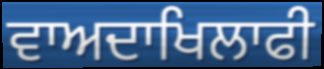
ਵਾਅਦਾਖਿਲਾਫੀ